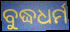
ବୁଦ୍ଧଧର୍ମ